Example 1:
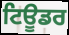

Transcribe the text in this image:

ਟਿਊਡਰ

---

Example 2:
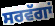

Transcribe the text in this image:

ਸਰਵੱਗਾਂ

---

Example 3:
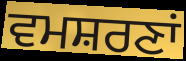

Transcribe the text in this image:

ਵਮਸ਼ਰਣਾਂ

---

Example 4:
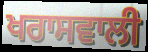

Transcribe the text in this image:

ਖਰਾਸਵਾਲੀ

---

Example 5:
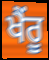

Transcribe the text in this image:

ਖੈਂਰੂ